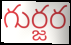
గుర్జర